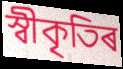
স্বীকৃতিৰ